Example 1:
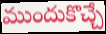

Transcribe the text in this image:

ముందుకొచ్చే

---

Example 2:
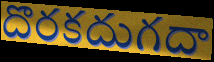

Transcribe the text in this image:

దొరకదుగదా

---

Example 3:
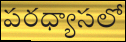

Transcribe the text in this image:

పరధ్యాసలో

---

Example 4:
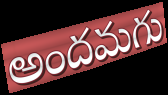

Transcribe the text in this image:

అందమగు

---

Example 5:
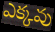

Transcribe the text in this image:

ఎక్కవు